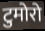
टुमोरो